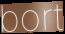
bort